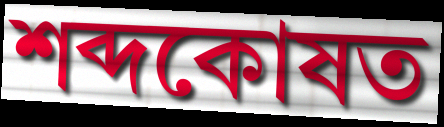
শব্দকোষত